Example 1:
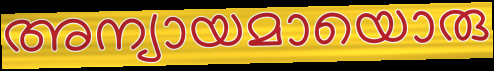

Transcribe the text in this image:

അന്യായമായൊരു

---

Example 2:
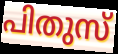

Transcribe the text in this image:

പിതുസ്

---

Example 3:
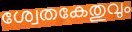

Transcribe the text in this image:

ശ്വേതകേതുവും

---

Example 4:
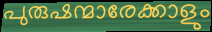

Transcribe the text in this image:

പുരുഷന്മാരേക്കാളും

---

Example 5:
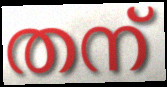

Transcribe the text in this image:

തന്